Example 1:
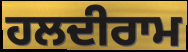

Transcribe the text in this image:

ਹਲਦੀਰਾਮ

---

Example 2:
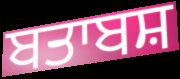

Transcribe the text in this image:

ਬਤਾਬਸ਼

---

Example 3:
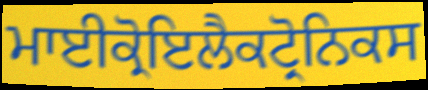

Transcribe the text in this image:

ਮਾਈਕ੍ਰੋਇਲੈਕਟ੍ਰੋਨਿਕਸ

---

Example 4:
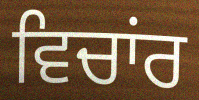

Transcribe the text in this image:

ਵਿਚਾਂਰ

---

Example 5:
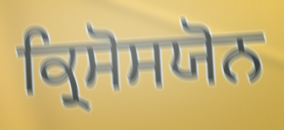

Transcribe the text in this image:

ਕ੍ਰਿਸੋਸਯੋਨ